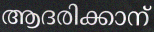
ആദരിക്കാന്